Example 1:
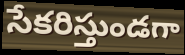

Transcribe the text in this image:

సేకరిస్తుండగా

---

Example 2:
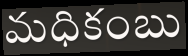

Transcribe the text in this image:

మధికంబు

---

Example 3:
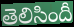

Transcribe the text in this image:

తెలిసిందీ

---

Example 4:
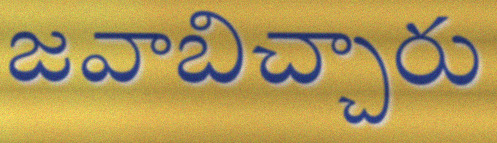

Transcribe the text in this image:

జవాబిచ్చారు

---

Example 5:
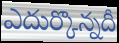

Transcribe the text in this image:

ఎదుర్కొన్నదీ